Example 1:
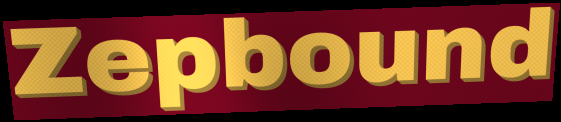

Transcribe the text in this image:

Zepbound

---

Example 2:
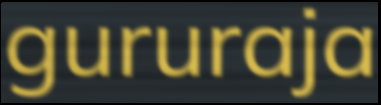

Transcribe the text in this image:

gururaja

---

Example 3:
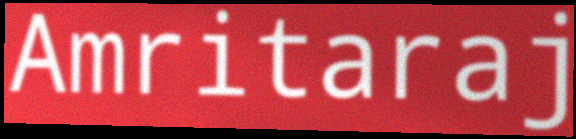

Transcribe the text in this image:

Amritaraj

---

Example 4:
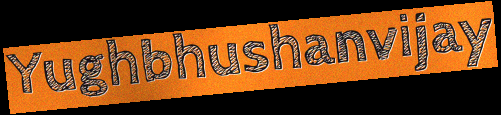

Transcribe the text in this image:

Yughbhushanvijay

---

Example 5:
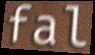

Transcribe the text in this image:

fal